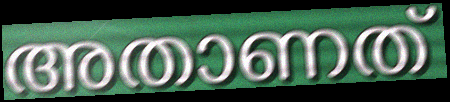
അതാണത്